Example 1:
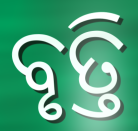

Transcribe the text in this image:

ବୃତ୍ତି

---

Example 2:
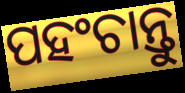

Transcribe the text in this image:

ପହଂଚାନ୍ତୁ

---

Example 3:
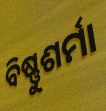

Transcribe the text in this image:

ବିଷ୍ଣୁଶର୍ମା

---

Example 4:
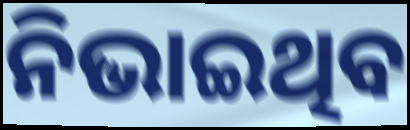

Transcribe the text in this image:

ନିଭାଇଥିବ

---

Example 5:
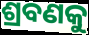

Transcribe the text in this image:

ଶ୍ରବଣକୁ